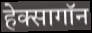
हेक्सागॉन